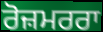
ਰੋਜ਼ਮਰਰਾ